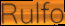
Rulfo